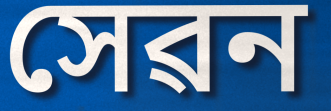
সেৱন